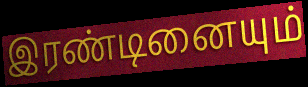
இரண்டினையும்